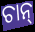
ଚାନ୍